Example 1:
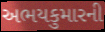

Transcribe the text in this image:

અભયકુમારની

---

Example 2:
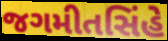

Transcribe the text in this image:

જગમીતસિંહે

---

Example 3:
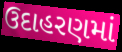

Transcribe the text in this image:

ઉદાહરણમાં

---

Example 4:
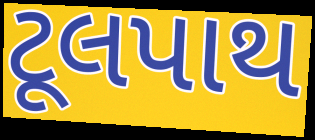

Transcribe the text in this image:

ટૂલપાથ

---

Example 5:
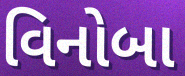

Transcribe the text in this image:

વિનોબા